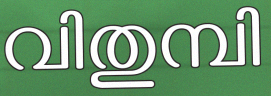
വിതുമ്പി